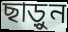
ছাড়ুন